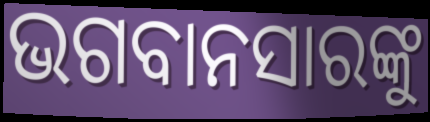
ଭଗବାନସାରଙ୍କୁ